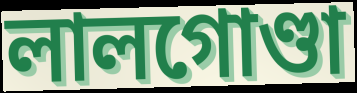
লালগোণ্ডা